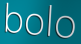
bolo